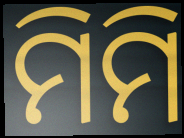
ମିମି